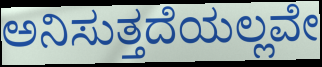
ಅನಿಸುತ್ತದೆಯಲ್ಲವೇ